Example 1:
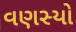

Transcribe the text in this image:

વણસ્યો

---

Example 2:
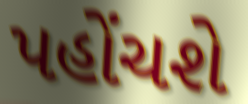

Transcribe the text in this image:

પહોંચશે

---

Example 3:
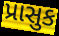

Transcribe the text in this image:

પ્રાસુક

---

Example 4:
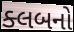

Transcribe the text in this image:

ક્લબનો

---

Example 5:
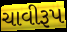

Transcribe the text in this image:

ચાવીરૂપ